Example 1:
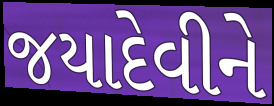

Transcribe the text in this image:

જયાદેવીને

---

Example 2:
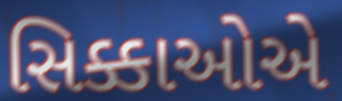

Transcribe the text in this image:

સિક્કાઓએ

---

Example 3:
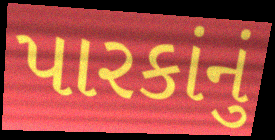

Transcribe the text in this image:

પારકાંનું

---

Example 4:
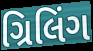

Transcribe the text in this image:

ગ્રિલિંગ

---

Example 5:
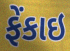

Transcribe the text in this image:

ફેંકાઇ